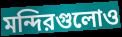
মন্দিরগুলোও